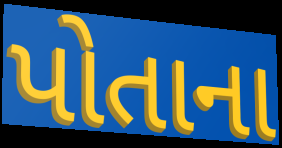
પોતાના